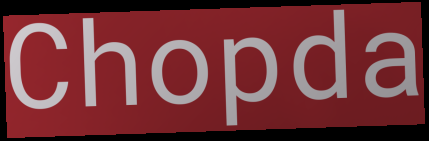
Chopda